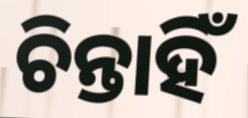
ଚିନ୍ତାହିଁ